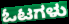
ಓಟಗಳು